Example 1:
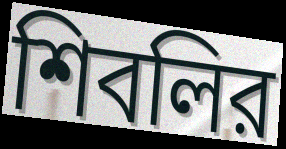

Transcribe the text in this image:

শিবলির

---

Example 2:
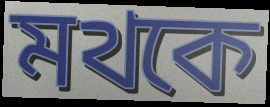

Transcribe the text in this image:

মথকে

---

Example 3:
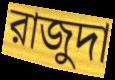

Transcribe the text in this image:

রাজুদা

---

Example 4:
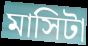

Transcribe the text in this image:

মাসিটা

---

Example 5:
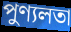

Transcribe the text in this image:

পুণ্যলতা